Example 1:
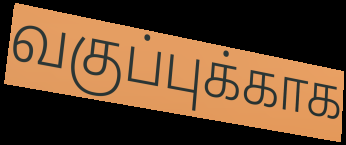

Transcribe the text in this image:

வகுப்புக்காக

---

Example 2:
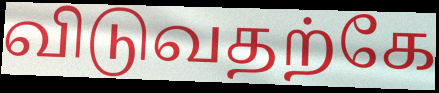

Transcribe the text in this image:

விடுவதற்கே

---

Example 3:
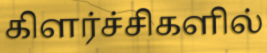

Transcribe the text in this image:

கிளர்ச்சிகளில்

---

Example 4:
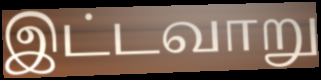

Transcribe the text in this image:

இட்டவாறு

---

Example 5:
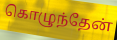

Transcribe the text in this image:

கொழுந்தேன்